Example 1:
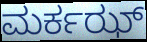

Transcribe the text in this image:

ಮರ್ಕಝ್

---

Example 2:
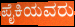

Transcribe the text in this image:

ಪೈಕಿಯವರು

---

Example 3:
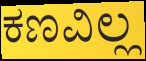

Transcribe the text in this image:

ಕಣವಿಲ್ಲ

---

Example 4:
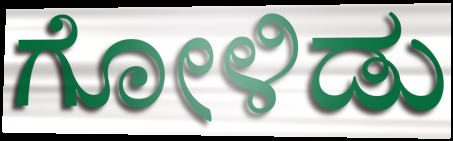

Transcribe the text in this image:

ಗೋಳಿಡು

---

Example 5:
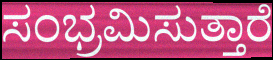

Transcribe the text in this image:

ಸಂಭ್ರಮಿಸುತ್ತಾರೆ